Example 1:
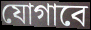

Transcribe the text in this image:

যোগাবে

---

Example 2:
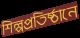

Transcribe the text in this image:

শিল্পপ্রতিষ্ঠানে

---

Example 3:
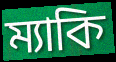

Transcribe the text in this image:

ম্যাকি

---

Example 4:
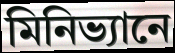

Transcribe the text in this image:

মিনিভ্যানে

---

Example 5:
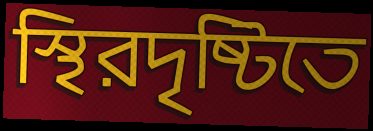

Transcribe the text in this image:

স্থিরদৃষ্টিতে